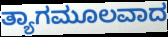
ತ್ಯಾಗಮೂಲವಾದ